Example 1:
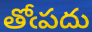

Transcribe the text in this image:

తోఁపదు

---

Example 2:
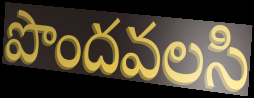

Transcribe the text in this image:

పొందవలసి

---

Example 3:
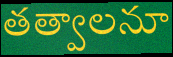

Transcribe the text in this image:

తత్వాలనూ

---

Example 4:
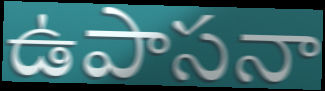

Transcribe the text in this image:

ఉపాసనా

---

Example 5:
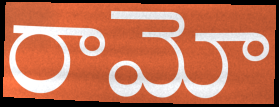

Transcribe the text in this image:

రామో